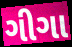
ગીગા